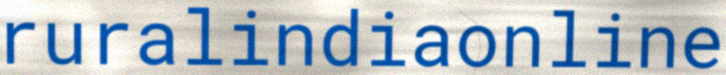
ruralindiaonline